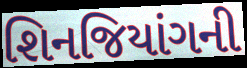
શિનજિયાંગની